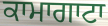
ਕਾਮਾਗਾਟਾ